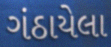
ગંઠાયેલા